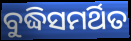
ବୁଦ୍ଧିସମର୍ଥିତ